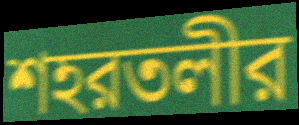
শহরতলীর